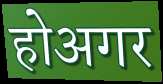
होअगर